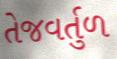
તેજવર્તુળ